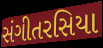
સંગીતરસિયા